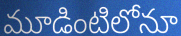
మూడింటిలోనూ